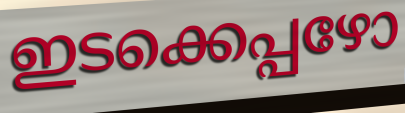
ഇടക്കെപ്പഴോ